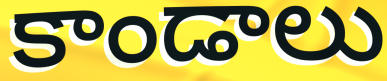
కాండాలు